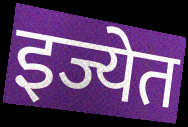
इज्येत